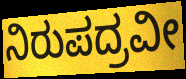
ನಿರುಪದ್ರವೀ